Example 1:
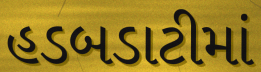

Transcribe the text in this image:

હડબડાટીમાં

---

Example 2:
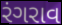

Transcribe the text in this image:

રંગરાવ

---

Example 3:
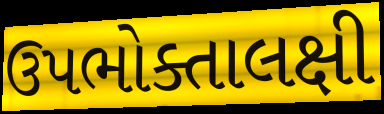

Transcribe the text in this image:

ઉપભોક્તાલક્ષી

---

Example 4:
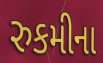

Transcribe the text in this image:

રુકમીના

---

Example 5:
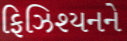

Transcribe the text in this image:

ફિઝિશ્યનને